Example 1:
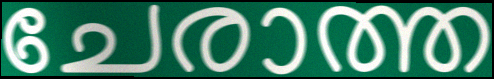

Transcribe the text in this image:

ചേരാത്ത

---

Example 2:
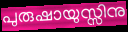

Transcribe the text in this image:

പുരുഷായുസ്സിനു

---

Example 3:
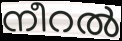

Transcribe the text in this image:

നീറൽ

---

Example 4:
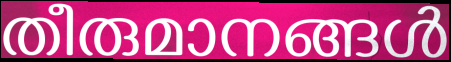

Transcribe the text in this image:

തീരുമാനങ്ങൾ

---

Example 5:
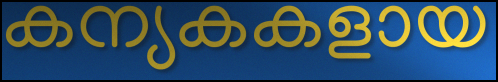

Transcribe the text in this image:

കന്യകകളായ